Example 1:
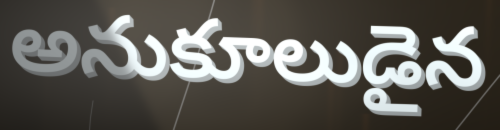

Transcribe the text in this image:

అనుకూలుడైన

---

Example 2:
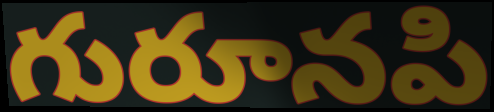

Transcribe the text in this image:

గురూనపి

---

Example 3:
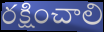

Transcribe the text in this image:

రక్షించాలి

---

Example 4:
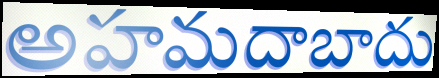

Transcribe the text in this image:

అహమదాబాదు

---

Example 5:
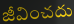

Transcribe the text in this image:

జీవించదు